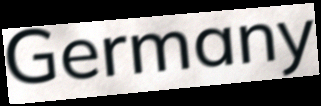
Germany